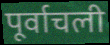
पूर्वाचली